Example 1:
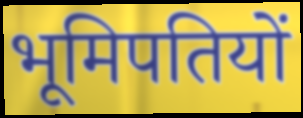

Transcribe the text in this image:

भूमिपतियों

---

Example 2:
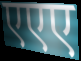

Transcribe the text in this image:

एएए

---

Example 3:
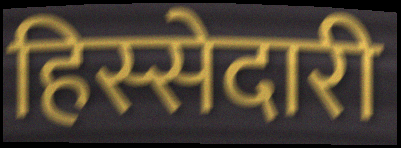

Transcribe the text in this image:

हिस्‍सेदारी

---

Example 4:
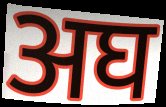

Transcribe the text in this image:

अघ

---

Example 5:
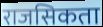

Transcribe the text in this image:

राजसिकता